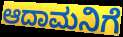
ಆದಾಮನಿಗೆ